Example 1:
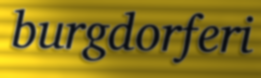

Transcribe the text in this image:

burgdorferi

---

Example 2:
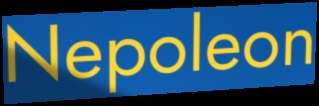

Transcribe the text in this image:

Nepoleon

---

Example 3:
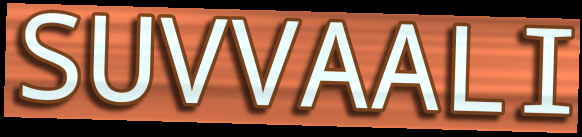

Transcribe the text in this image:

SUVVAALI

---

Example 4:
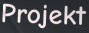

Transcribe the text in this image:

Projekt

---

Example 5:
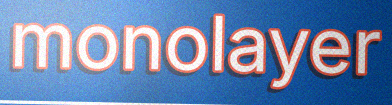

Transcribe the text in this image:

monolayer